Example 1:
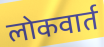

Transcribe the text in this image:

लोकवार्त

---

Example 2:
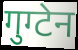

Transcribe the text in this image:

गुग्टेन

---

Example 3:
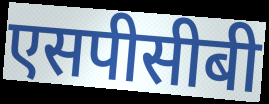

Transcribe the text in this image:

एसपीसीबी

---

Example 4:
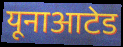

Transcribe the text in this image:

यूनाआटेड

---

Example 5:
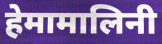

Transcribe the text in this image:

हेमामालिनी